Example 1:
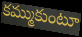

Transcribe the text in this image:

కమ్ముకుంటూ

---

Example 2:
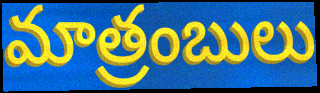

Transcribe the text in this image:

మాత్రంబులు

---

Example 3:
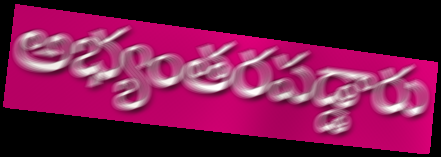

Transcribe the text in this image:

అభ్యంతరపడ్డారు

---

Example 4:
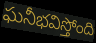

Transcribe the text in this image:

ఘనీభవిస్తోంది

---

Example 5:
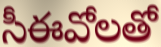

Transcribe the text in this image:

సీఈవోలతో